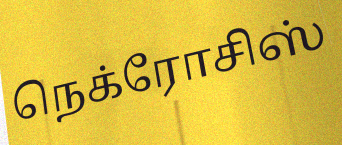
நெக்ரோசிஸ்